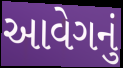
આવેગનું